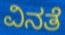
ವಿನತೆ